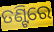
ତଣ୍ଟିରେ